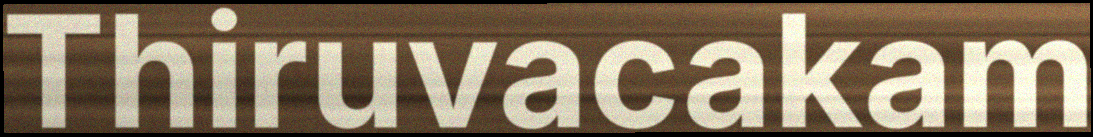
Thiruvacakam